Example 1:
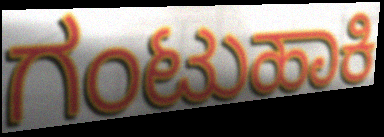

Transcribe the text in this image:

ಗಂಟುಹಾಕಿ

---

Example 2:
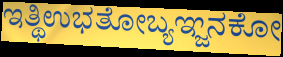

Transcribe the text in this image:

ಇತ್ಥಿಉಭತೋಬ್ಯಞ್ಜನಕೋ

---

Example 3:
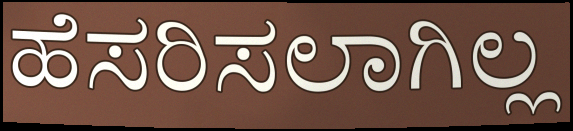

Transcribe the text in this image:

ಹೆಸರಿಸಲಾಗಿಲ್ಲ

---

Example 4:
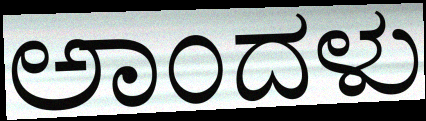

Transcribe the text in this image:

ಅಾಂದಳು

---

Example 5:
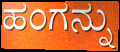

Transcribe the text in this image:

ಹಂಗನ್ನು